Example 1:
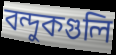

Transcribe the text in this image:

বন্দুকগুলি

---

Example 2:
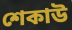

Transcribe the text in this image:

শেকাউ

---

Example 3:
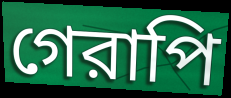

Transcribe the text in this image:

গেরাপি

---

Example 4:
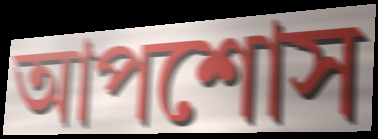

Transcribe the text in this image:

আপশোস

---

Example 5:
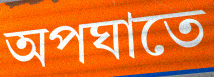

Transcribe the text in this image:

অপঘাতে